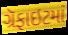
ગ્રૅફાઇટમાં